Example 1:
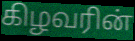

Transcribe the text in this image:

கிழவரின்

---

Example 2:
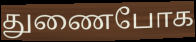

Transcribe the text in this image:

துணைபோக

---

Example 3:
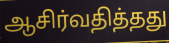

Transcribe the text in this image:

ஆசிர்வதித்தது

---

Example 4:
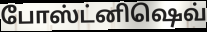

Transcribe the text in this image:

போஸ்ட்னிஷெவ்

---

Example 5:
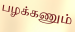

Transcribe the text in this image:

பழக்கணும்